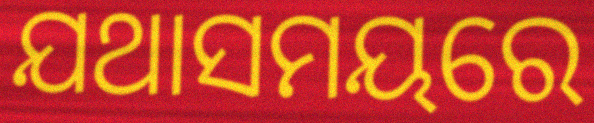
ଯଥାସମୟରେ